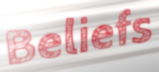
Beliefs